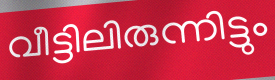
വീട്ടിലിരുന്നിട്ടും